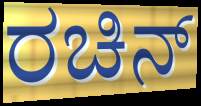
ರಚಿನ್